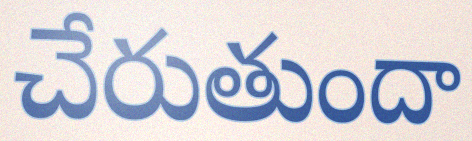
చేరుతుందా